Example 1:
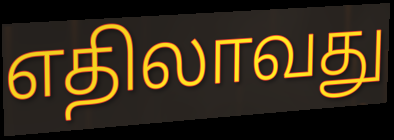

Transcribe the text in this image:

எதிலாவது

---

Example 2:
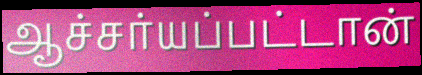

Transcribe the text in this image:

ஆச்சர்யப்பட்டான்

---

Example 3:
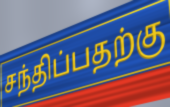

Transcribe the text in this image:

சந்திப்பதற்கு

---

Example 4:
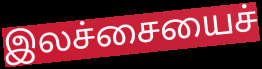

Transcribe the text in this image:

இலச்சையைச்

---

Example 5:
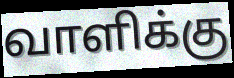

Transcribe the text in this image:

வாளிக்கு